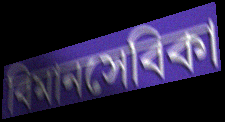
বিমানসেবিকা